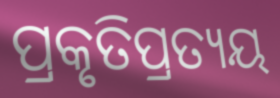
ପ୍ରକୃତିପ୍ରତ୍ୟୟ